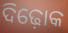
ଦିଢ଼ୋକ